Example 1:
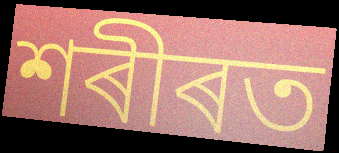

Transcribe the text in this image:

শৰীৰত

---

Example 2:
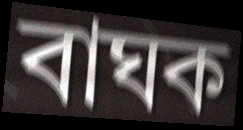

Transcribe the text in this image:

বাঘক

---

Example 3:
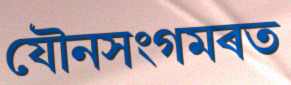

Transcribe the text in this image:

যৌনসংগমৰত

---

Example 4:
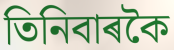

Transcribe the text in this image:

তিনিবাৰকৈ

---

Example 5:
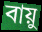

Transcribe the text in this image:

বায়ু